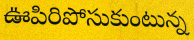
ఊపిరిపోసుకుంటున్న